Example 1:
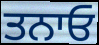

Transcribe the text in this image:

ਤਨਾਓ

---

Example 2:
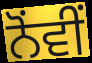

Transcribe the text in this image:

ਨੋਂਵੀਂ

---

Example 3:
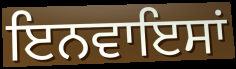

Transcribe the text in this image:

ਇਨਵਾਇਸਾਂ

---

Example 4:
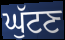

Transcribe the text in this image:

ਘੁੱਟਣ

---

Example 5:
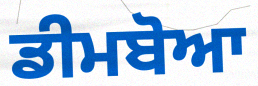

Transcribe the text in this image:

ਡੀਮਬੋਆ